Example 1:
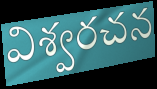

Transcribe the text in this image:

విశ్వరచన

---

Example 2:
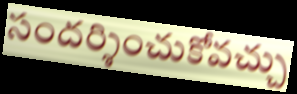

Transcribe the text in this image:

సందర్శించుకోవచ్చు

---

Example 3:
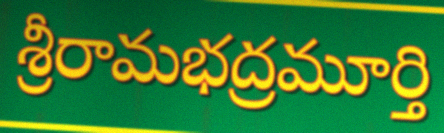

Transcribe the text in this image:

శ్రీరామభద్రమూర్తి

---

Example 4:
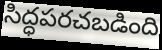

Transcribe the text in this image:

సిద్ధపరచబడింది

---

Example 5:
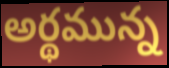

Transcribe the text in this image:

అర్థమున్న